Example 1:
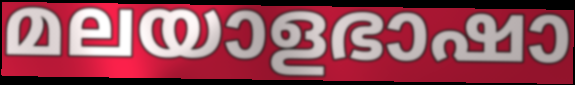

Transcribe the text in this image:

മലയാളഭാഷാ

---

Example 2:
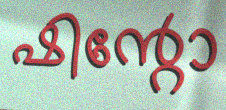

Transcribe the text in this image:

ഷിന്റോ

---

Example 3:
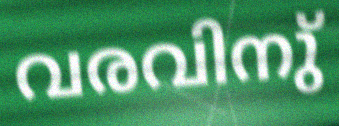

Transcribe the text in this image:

വരവിനു്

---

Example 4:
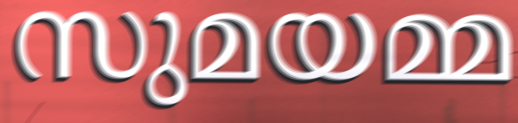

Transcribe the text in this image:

സുമയമ്മ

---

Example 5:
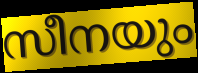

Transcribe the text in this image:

സീനയും